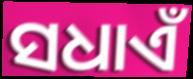
ସଧାଏଁ